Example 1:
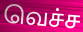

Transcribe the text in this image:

வெச்ச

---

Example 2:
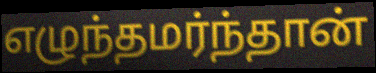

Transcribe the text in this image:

எழுந்தமர்ந்தான்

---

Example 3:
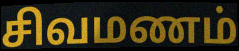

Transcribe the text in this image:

சிவமணம்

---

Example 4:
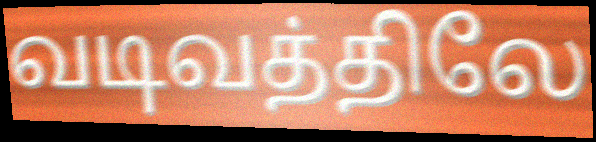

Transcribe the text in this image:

வடிவத்திலே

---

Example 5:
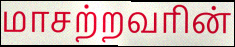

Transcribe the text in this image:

மாசற்றவரின்